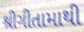
શ્રીગીતામાથી